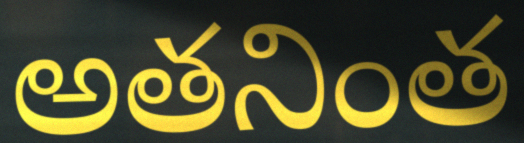
అతనింత